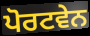
ਪੋਰਟਵੇਨ